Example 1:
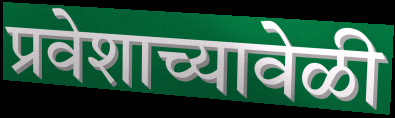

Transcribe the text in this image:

प्रवेशाच्यावेळी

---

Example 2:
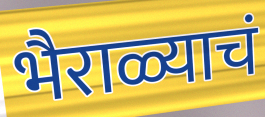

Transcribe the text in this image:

भैराळ्याचं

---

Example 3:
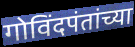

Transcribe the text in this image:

गोविंदपंतांच्या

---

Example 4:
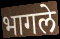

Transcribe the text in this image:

भागले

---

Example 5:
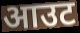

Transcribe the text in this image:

आउट